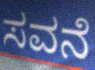
ಸವನೆ